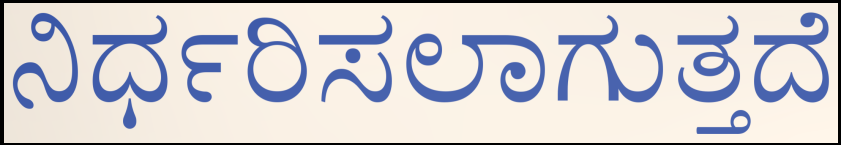
ನಿರ್ಧರಿಸಲಾಗುತ್ತದೆ